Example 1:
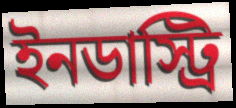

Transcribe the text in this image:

ইনডাস্ট্রি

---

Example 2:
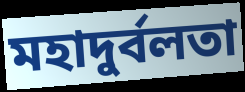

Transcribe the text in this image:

মহাদুর্বলতা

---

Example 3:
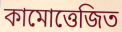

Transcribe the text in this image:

কামোত্তেজিত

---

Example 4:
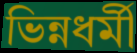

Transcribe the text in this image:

ভিন্নধর্মী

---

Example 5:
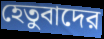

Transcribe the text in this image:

হেতুবাদের